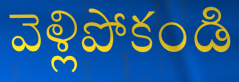
వెళ్లిపోకండి